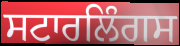
ਸਟਾਰਲਿੰਗਸ